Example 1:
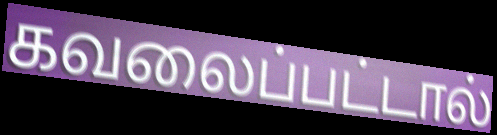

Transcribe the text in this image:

கவலைப்பட்டால்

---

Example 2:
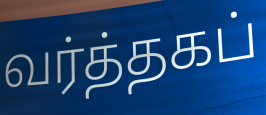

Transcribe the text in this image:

வர்த்தகப்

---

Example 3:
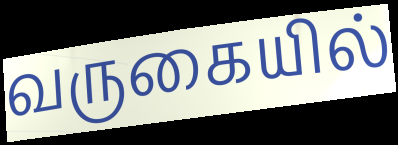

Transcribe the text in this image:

வருகையில்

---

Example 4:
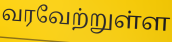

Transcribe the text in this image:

வரவேற்றுள்ள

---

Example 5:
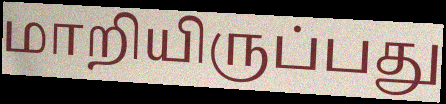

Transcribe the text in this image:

மாறியிருப்பது